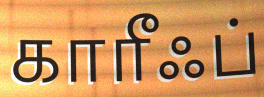
காரீஃப்